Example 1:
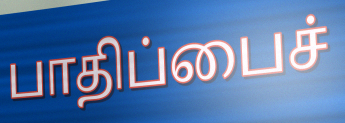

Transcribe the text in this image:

பாதிப்பைச்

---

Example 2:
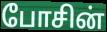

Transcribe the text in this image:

போசின்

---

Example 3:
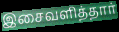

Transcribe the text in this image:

இசைவளித்தார்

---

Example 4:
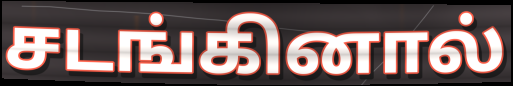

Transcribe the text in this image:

சடங்கினால்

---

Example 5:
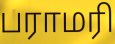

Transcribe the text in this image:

பராமரி